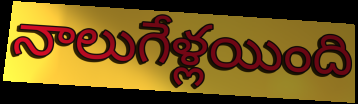
నాలుగేళ్లయింది